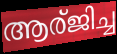
ആര്ജിച്ച